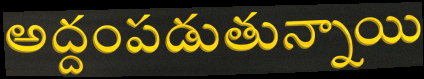
అద్దంపడుతున్నాయి